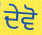
ਦੇਵੋ